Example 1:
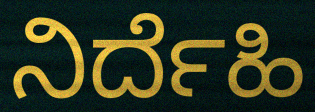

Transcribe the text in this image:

ನಿರ್ದೆಹಿ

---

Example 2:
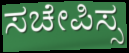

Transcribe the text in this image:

ಸಚೇಪಿಸ್ಸ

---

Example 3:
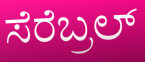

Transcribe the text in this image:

ಸೆರೆಬ್ರಲ್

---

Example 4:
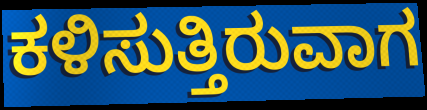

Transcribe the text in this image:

ಕಳಿಸುತ್ತಿರುವಾಗ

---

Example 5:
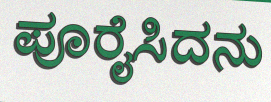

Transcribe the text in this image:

ಪೂರೈಸಿದನು